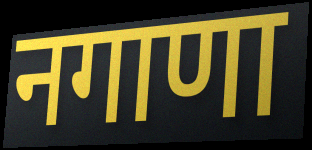
नगाणा